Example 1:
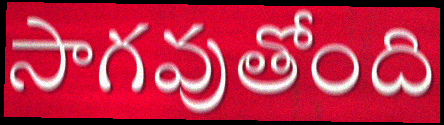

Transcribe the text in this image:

సాగవుతోంది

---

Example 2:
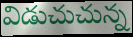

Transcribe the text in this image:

విడుచుచున్న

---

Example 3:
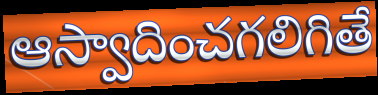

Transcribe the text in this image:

ఆస్వాదించగలిగితే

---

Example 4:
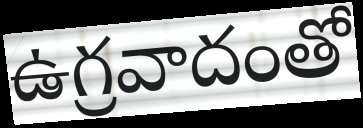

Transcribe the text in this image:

ఉగ్రవాదంతో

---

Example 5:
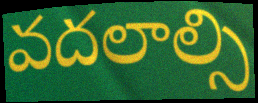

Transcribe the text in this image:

వదలాల్సి